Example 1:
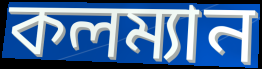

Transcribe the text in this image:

কলম্যান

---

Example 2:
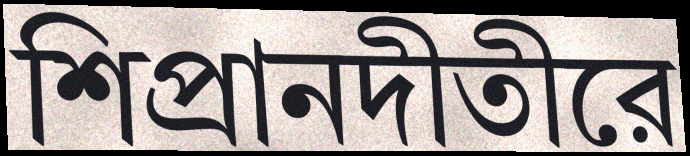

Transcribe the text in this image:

শিপ্রানদীতীরে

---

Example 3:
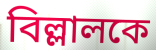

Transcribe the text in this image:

বিল্লালকে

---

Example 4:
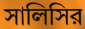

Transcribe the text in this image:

সালিসির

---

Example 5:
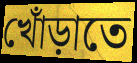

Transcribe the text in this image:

খোঁড়াতে